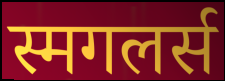
स्‍मगलर्स